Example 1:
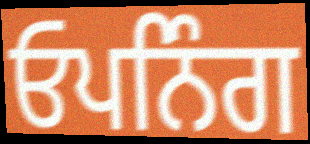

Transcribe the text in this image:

ਓਪਨਿੰਗ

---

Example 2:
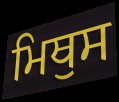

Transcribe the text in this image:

ਮਿਥੁਸ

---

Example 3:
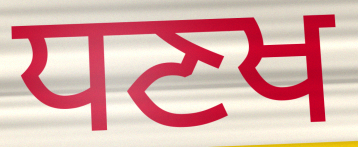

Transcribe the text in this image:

ਧਣਖ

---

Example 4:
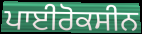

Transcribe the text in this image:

ਪਾਈਰੋਕਸੀਨ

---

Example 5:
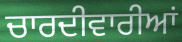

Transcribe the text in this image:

ਚਾਰਦੀਵਾਰੀਆਂ